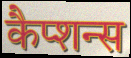
कैप्शन्स